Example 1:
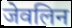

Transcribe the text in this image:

जेवलिन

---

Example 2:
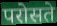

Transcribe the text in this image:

परोसते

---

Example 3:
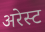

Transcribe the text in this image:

अरेस्ट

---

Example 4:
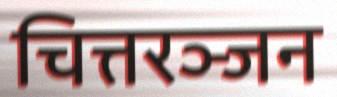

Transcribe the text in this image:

चित्तरञ्जन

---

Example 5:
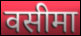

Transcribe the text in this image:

वसीमा